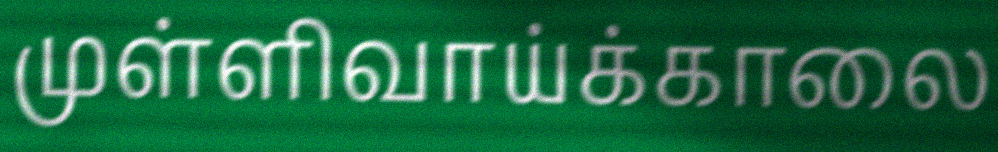
முள்ளிவாய்க்காலை